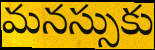
మనస్సుకు